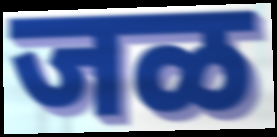
जळ